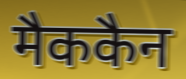
मैककैन